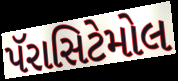
પૅરાસિટેમોલ